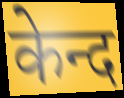
केन्द